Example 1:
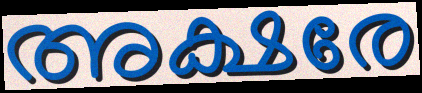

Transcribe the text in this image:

അക്ഷരേ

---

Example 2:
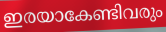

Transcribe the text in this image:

ഇരയാകേണ്ടിവരും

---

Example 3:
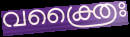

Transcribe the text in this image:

വക്ത്രൈഃ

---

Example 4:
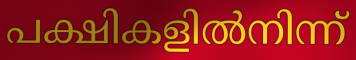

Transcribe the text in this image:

പക്ഷികളിൽനിന്ന്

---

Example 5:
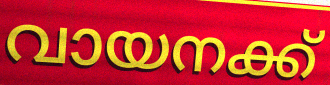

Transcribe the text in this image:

വായനക്ക്